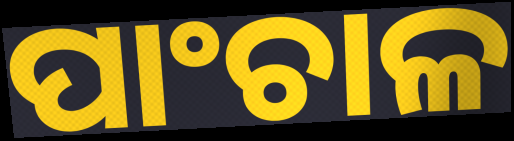
ପାଂଚାଳ